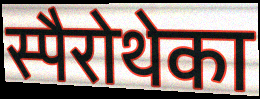
स्पैरोथेका